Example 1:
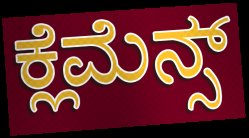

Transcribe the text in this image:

ಕ್ಲೆಮೆನ್ಸ್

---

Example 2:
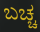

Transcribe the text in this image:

ಬಚ್ಚ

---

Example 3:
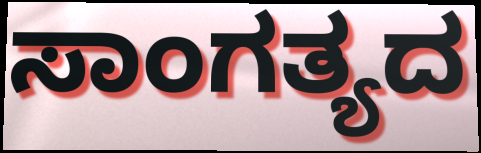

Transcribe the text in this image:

ಸಾಂಗತ್ಯದ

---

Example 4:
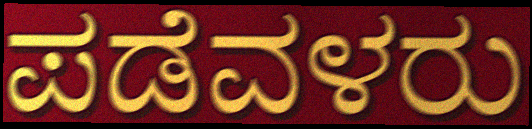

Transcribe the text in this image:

ಪಡೆವಳರು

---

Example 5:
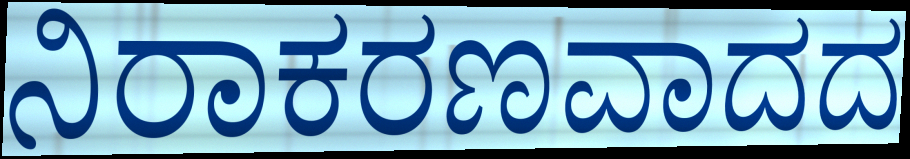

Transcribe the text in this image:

ನಿರಾಕರಣವಾದದ